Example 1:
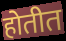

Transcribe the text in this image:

होतीत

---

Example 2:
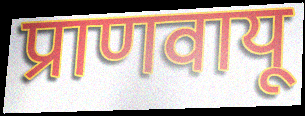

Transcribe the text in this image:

प्राणवायू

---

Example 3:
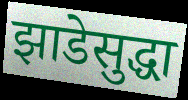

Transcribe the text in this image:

झाडेसुद्धा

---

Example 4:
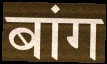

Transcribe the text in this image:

बांग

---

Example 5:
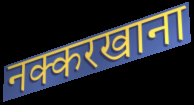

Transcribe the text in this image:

नक्करखाना